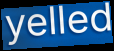
yelled